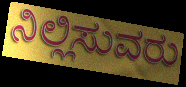
ನಿಲ್ಲಿಸುವರು